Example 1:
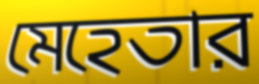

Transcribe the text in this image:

মেহেতার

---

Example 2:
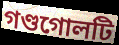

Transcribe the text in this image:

গণ্ডগোলটি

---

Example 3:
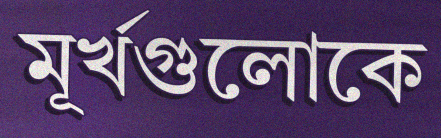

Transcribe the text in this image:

মূর্খগুলোকে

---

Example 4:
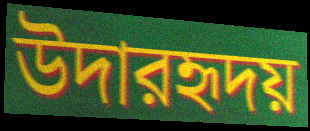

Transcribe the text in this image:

উদারহৃদয়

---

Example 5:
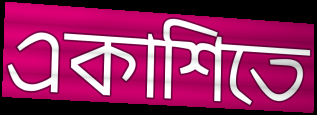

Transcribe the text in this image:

একাশিতে